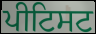
ਪੀਟਿਸਟ